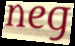
neg